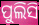
ପୁଲିସି